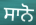
ਸਾਨੋ